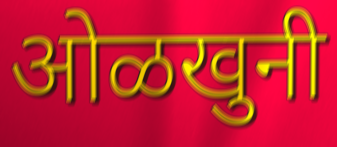
ओळखुनी